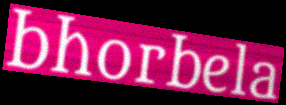
bhorbela